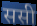
ससी